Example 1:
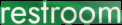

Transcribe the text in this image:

restroom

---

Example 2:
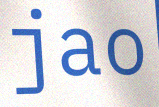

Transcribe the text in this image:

jao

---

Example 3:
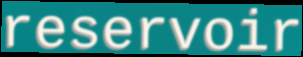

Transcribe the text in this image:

reservoir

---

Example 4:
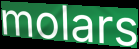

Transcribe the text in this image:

molars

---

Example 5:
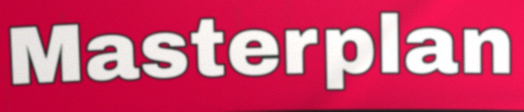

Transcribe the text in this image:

Masterplan